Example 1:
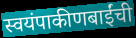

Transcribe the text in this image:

स्वयंपाकीणबाईंची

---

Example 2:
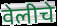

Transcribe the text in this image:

वेलीचे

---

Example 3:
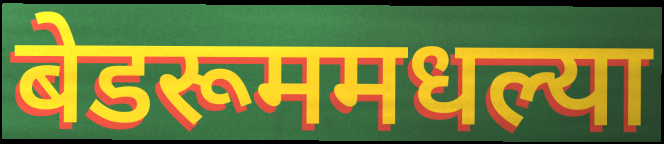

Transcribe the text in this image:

बेडरूममधल्या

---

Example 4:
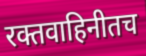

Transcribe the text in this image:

रक्तवाहिनीतच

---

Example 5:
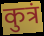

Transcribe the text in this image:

कुत्रं